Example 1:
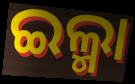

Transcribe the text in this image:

ଇଲ୍ମା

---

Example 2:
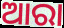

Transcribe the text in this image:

ଆରା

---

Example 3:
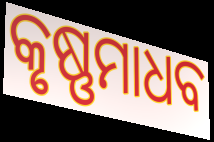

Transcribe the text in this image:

କୃଷ୍ଣମାଧବ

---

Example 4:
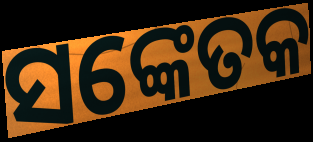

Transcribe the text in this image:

ସଙ୍କେତକ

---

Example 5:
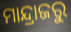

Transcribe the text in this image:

ମାନ୍ଦ୍ରାଜରୁ